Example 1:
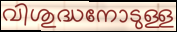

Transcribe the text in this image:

വിശുദ്ധനോടുള്ള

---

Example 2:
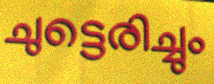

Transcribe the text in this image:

ചുട്ടെരിച്ചും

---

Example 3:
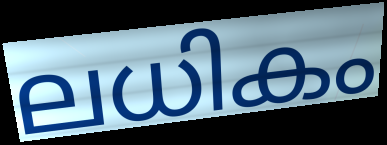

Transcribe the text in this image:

ലധികം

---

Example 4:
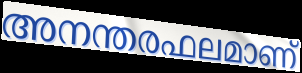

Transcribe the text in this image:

അനന്തരഫലമാണ്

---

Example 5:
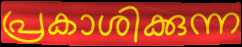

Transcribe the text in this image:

പ്രകാശിക്കുന്ന